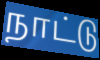
நாட்டு